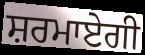
ਸ਼ਰਮਾਏਗੀ